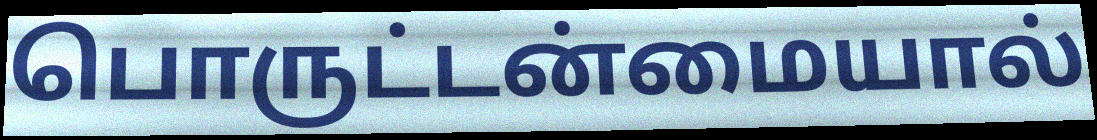
பொருட்டன்மையால்